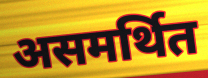
असमर्थित